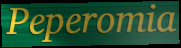
Peperomia